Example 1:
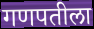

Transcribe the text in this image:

गणपतीला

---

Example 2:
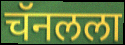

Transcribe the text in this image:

चॅनलला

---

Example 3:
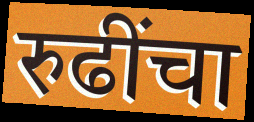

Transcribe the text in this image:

रुढींचा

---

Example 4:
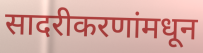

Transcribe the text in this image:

सादरीकरणांमधून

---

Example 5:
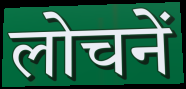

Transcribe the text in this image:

लोचनें